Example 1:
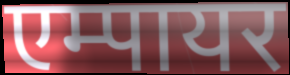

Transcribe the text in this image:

एम्पायर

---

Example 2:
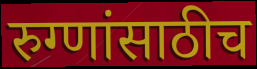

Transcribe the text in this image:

रुग्णांसाठीच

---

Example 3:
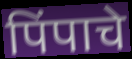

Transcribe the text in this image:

पिंपाचे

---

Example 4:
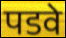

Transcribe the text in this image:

पडवे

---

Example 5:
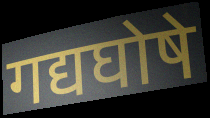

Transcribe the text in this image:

गद्यघोषे